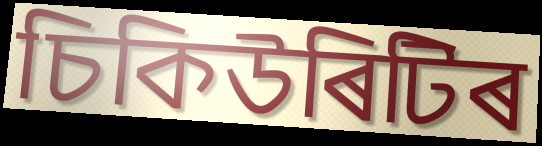
চিকিউৰিটিৰ